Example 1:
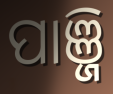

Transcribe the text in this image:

ପାଞ୍ଜି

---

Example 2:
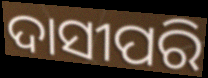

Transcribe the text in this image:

ଦାସୀପରି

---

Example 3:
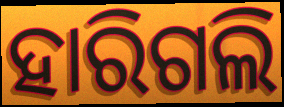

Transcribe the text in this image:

ହାରିଗଲି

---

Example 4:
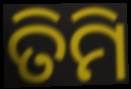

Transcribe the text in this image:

ତିମି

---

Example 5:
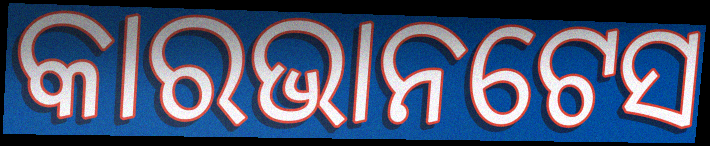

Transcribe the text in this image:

କାରଭାନଟେସ